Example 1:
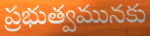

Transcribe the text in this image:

ప్రభుత్వమునకు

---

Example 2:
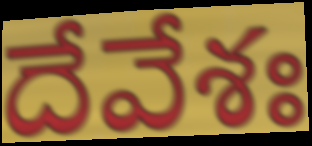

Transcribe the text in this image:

దేవేశః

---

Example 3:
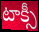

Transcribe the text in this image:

టాక్సీ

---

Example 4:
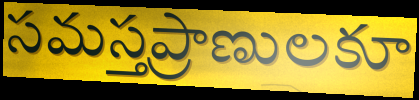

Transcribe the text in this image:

సమస్తప్రాణులకూ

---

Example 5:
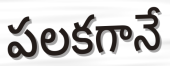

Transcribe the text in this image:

పలకగానే